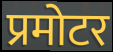
प्रमोटर